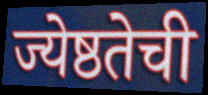
ज्येष्ठतेची